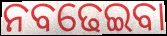
ନବଢେଇବା